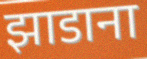
झाडाना